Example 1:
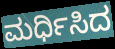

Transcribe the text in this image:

ಮರ್ಧಿಸಿದ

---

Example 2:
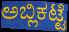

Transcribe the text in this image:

ಅಬ್ಲಿಕಟ್ಟೆ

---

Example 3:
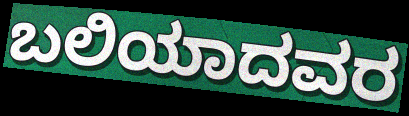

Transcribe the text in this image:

ಬಲಿಯಾದವರ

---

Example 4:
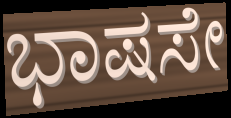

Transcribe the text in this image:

ಭಾಷಸೇ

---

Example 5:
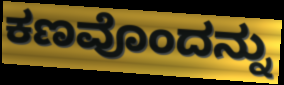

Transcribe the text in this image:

ಕಣವೊಂದನ್ನು